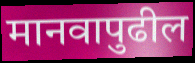
मानवापुढील